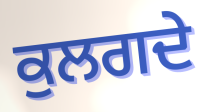
ਕੁਲਗਦੇ